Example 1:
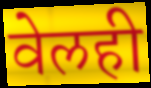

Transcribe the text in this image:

वेलही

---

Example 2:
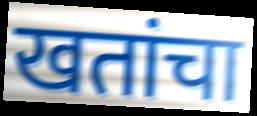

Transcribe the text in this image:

खतांचा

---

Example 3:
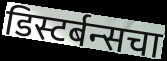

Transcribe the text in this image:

डिस्टर्बन्सचा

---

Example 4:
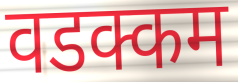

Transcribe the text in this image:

वडक्कम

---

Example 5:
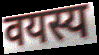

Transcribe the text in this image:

वयस्य